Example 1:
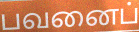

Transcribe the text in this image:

பவனைப்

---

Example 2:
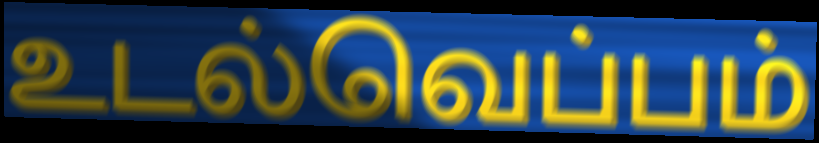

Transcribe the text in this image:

உடல்வெப்பம்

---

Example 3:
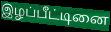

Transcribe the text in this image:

இழப்பீட்டினை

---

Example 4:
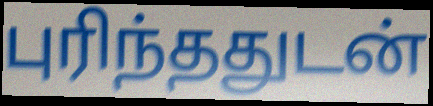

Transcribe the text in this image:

புரிந்ததுடன்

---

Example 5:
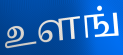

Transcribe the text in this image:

உளங்